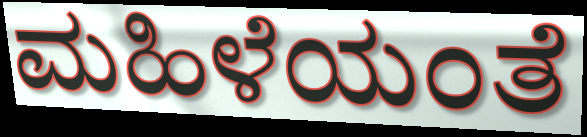
ಮಹಿಳೆಯಂತೆ